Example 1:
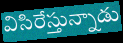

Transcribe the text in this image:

విసిరేస్తున్నాడు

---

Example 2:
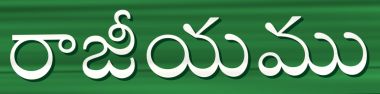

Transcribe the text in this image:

రాజీయము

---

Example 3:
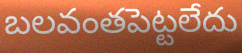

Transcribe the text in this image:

బలవంతపెట్టలేదు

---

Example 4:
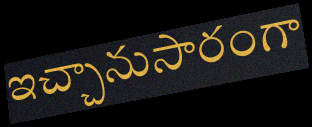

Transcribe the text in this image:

ఇచ్చానుసారంగా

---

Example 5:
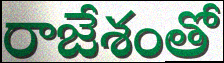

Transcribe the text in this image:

రాజేశంతో